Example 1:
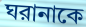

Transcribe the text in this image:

ঘরানাকে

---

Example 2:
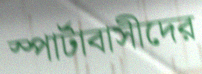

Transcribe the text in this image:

স্পার্টাবাসীদের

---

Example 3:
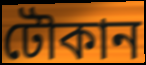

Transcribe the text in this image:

টৌকান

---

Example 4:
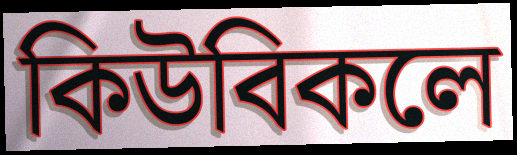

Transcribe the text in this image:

কিউবিকলে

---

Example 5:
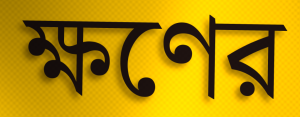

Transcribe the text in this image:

ক্ষণের